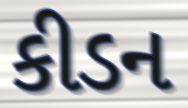
કીડન